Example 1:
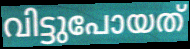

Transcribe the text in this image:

വിട്ടുപോയത്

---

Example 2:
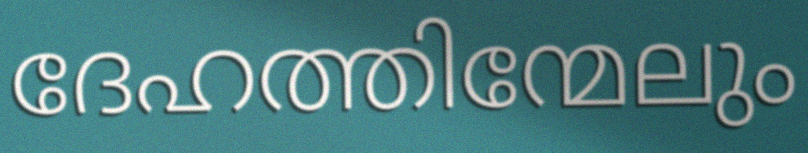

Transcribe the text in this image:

ദേഹത്തിന്മേലും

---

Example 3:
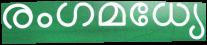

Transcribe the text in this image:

രംഗമധ്യേ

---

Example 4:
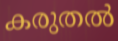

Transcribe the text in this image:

കരുതൽ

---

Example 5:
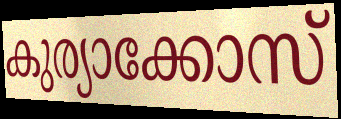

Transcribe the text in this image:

കുര്യാക്കോസ്